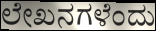
ಲೇಖನಗಳೆಂದು